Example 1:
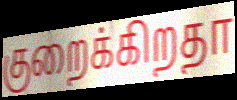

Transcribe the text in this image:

குறைக்கிறதா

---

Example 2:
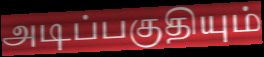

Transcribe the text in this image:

அடிப்பகுதியும்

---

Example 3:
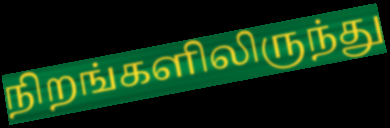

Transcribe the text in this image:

நிறங்களிலிருந்து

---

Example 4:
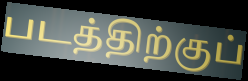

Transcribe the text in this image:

படத்திற்குப்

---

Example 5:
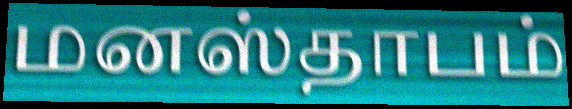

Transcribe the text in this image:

மனஸ்தாபம்